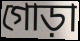
গোড়া